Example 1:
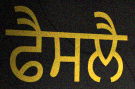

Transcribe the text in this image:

ਫੈਸਲੈ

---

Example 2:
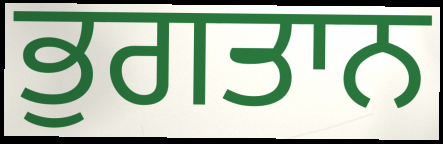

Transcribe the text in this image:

ਭੁਗਤਾਨ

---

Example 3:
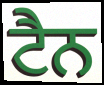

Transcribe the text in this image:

ਟੈਨ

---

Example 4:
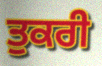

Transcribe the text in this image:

ਤੁਕਰੀ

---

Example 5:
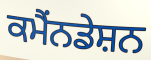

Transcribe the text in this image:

ਕਮੈਂਨਡੇਸ਼ਨ